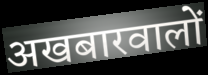
अखबारवालों